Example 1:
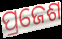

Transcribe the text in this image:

ପ୍ରଜେଶ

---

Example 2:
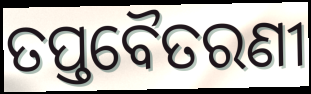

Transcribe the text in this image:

ତପ୍ତବୈତରଣୀ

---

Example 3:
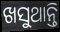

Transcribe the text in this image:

ଖସୁଥାନ୍ତି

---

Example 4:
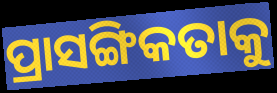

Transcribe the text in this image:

ପ୍ରାସଙ୍ଗିକତାକୁ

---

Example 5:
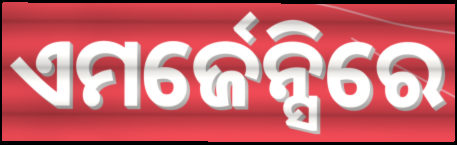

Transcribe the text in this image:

ଏମର୍ଜେନ୍ସିରେ